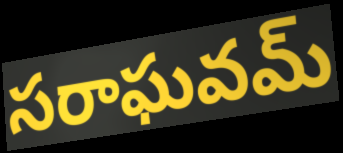
సరాఘవమ్